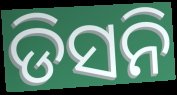
ଡିସନି